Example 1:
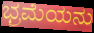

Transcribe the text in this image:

ಭ್ರಮೆಯನು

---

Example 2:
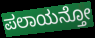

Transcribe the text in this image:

ಪಲಾಯನ್ತೋ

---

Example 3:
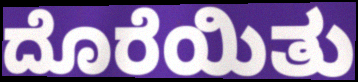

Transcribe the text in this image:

ದೊರೆಯಿತು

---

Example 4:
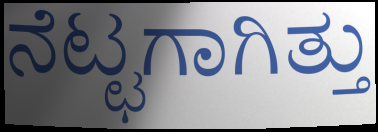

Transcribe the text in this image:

ನೆಟ್ಟಗಾಗಿತ್ತು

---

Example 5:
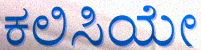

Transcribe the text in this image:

ಕಲಿಸಿಯೇ